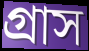
গ্রাস